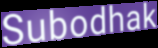
Subodhak